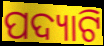
ପଦ୍ୟାଟି